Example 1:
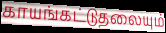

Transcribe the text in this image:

காயங்கட்டுதலையும்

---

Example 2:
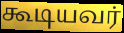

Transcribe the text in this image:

கூடியவர்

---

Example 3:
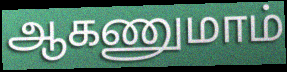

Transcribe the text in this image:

ஆகணுமாம்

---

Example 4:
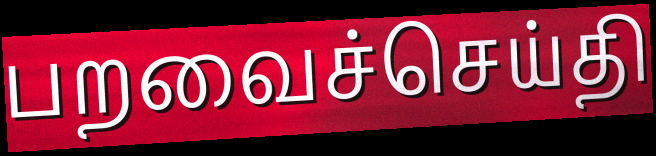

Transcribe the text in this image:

பறவைச்செய்தி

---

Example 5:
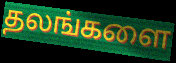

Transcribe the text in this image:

தலங்களை